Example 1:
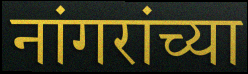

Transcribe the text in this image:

नांगरांच्या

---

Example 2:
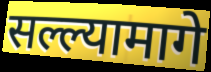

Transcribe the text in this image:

सल्ल्यामागे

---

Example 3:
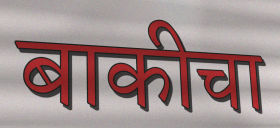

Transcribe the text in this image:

बाकीचा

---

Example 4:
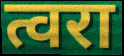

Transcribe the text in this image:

त्वरा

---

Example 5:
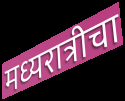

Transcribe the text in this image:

मध्यरात्रीचा